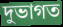
দুভাগত